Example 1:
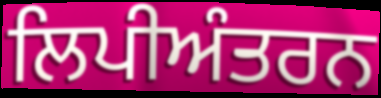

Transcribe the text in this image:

ਲਿਪੀਅੰਤਰਨ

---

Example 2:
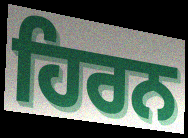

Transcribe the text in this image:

ਹਿਰਨ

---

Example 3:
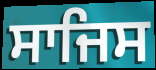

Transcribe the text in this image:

ਸਾਜਿਸ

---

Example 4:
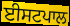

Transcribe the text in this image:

ਈਸਟਪਾਲ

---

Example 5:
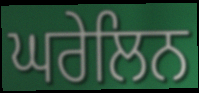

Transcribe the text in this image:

ਘਰੇਲਿਨ